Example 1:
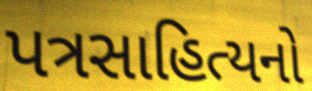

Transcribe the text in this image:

પત્રસાહિત્યનો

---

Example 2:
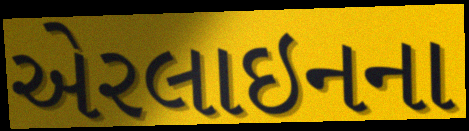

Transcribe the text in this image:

એરલાઇનના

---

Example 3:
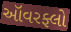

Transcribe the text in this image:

ઑવરફ્લો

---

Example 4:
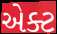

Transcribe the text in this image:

એક્ટ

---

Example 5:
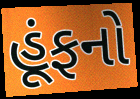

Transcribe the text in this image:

હૂંફનો